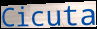
Cicuta